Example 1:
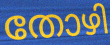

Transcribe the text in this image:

തോഴി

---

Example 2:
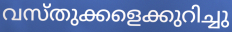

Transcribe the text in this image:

വസ്തുക്കളെക്കുറിച്ചു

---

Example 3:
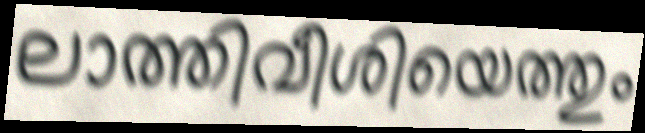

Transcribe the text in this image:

ലാത്തിവീശിയെത്തും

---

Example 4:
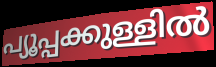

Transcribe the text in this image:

പ്യൂപ്പക്കുള്ളിൽ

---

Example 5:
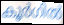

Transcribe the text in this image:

കൂർഗിൽ